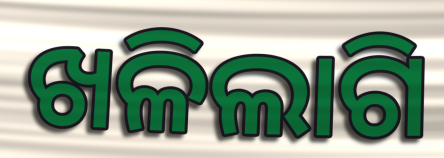
ଖଳିଲାଗି